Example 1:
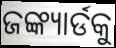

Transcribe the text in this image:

ଜଙ୍କ୍ୟାର୍ଡକୁ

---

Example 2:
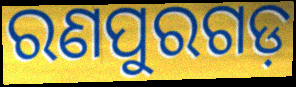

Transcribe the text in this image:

ରଣପୁରଗଡ଼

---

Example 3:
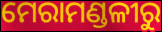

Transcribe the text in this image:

ମେରାମଣ୍ଡଳୀରୁ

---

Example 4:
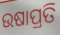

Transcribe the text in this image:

ଉଷାପ୍ରତି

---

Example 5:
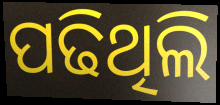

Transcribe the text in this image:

ପଢିଥିଲି